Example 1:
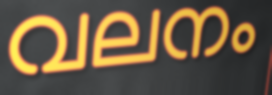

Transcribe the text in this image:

വലനം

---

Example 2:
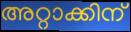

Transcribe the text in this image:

അറ്റാക്കിന്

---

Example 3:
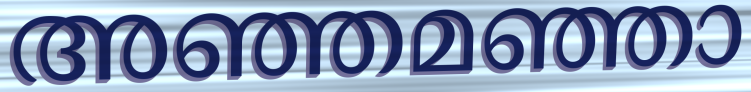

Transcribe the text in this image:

അഞ്ഞമഞ്ഞാ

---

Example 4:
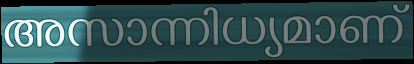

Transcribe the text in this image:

അസാന്നിധ്യമാണ്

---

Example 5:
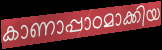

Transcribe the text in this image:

കാണാപ്പാഠമാക്കിയ